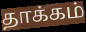
தாக்கம்